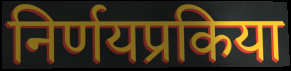
निर्णयप्रकिया